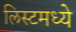
लिस्टमध्ये